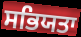
ਸਭਿਯਤਾ